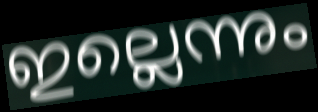
ഇല്ലെന്നും